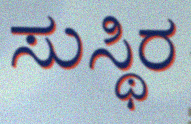
ಸುಸ್ಥಿರ